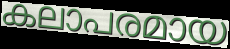
കലാപരമായ